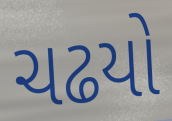
ચઢયો